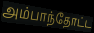
அம்பாந்தோட்ட